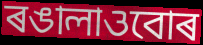
ৰঙালাওবোৰ